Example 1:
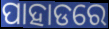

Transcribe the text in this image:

ପାହାଡରେ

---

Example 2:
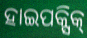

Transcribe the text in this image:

ହାଇପକ୍ସିକ୍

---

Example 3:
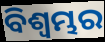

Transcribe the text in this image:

ବିଶ୍ବମ୍ଭର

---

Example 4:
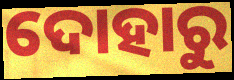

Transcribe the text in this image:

ଦୋହାରୁ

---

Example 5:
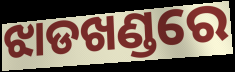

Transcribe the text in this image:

ଝାଡଖଣ୍ଡରେ